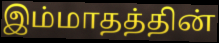
இம்மாதத்தின்